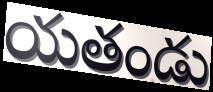
యతండు